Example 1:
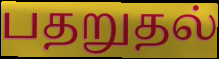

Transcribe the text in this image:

பதறுதல்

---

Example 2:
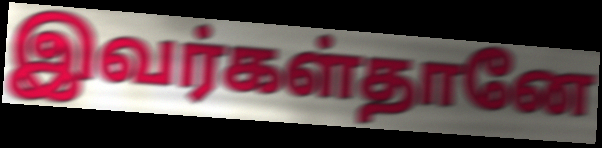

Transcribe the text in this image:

இவர்கள்தானே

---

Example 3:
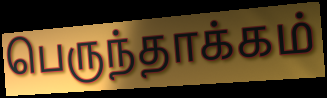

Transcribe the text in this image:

பெருந்தாக்கம்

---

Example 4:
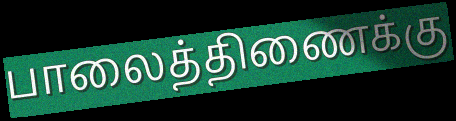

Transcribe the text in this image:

பாலைத்திணைக்கு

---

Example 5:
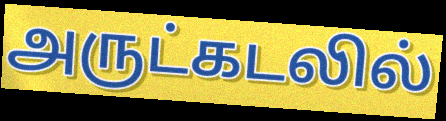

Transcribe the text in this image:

அருட்கடலில்